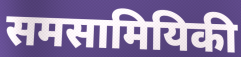
समसामियिकी